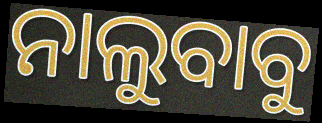
ନାଲୁବାବୁ